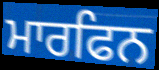
ਮਾਰਫਿਨ